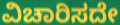
ವಿಚಾರಿಸದೇ